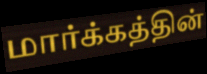
மார்க்கத்தின்